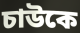
চাউকে